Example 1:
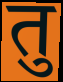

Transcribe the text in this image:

तु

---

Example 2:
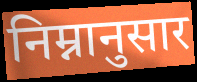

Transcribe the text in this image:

निम्नानुसार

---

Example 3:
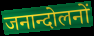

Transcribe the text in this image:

जनान्दोलनों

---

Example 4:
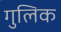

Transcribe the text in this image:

गुलिक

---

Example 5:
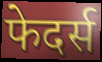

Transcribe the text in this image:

फेदर्स